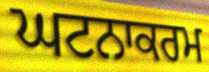
ਘਟਨਾਕਰਮ